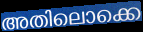
അതിലൊക്കെ